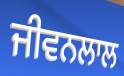
ਜੀਵਨਲਾਲ